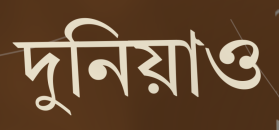
দুনিয়াও